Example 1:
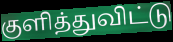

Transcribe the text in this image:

குளித்துவிட்டு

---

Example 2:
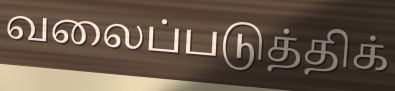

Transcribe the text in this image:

வலைப்படுத்திக்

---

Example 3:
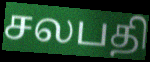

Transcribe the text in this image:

சலபதி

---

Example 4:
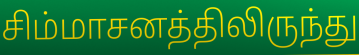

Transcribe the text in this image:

சிம்மாசனத்திலிருந்து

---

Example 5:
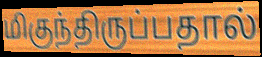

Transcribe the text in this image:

மிகுந்திருப்பதால்